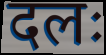
दलः